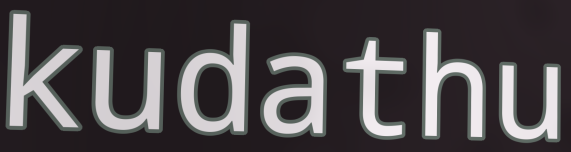
kudathu